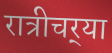
रात्रीचर्या